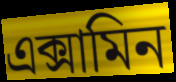
এক্সামিন